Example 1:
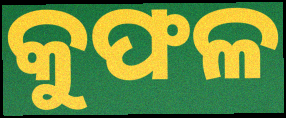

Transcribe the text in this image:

କୁଫଳ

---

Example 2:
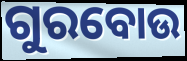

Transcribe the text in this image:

ଗୁରବୋଉ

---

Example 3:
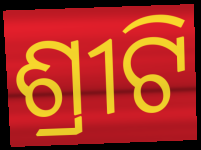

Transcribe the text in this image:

ଶ୍ରୀଟି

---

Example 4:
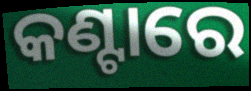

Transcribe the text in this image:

କଣ୍ଟାରେ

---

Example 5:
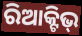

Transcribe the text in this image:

ରିଆକ୍ଟିଭ୍